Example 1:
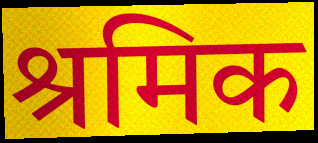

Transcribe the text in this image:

श्रमिक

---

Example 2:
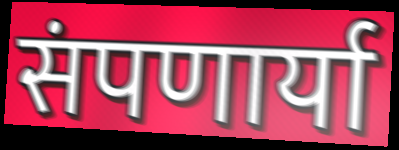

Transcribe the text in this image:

संपणार्या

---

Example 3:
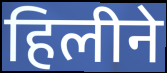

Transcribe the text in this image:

हिलीने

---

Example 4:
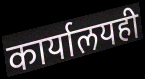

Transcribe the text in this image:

कार्यालयही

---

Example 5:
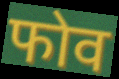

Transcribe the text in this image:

फोव